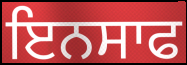
ਇਨਸਾਫ